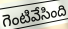
గెంటివేసింది